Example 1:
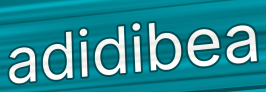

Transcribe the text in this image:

adidibea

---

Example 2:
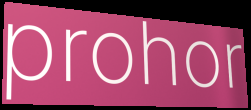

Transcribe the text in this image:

prohor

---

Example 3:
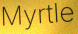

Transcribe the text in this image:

Myrtle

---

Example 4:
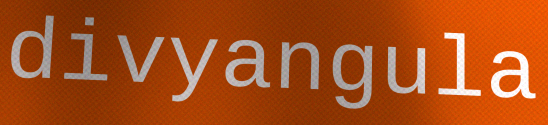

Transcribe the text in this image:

divyangula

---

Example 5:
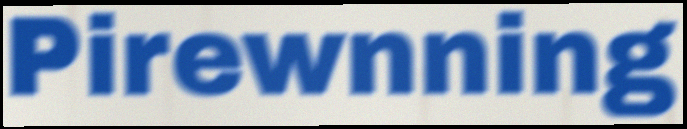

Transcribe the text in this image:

Pirewnning